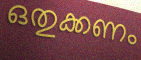
ഒതുക്കണം